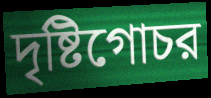
দৃষ্টিগোচর